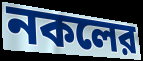
নকলের